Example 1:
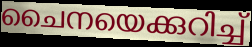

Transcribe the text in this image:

ചൈനയെക്കുറിച്ച്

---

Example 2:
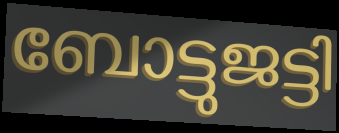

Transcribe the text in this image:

ബോട്ടുജട്ടി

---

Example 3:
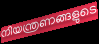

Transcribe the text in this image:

നിയന്ത്രണങ്ങളുടെ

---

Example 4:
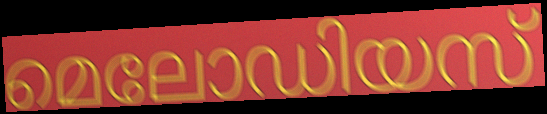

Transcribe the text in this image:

മെലോഡിയസ്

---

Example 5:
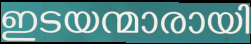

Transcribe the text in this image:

ഇടയന്മാരായി